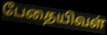
பேதையிவள்